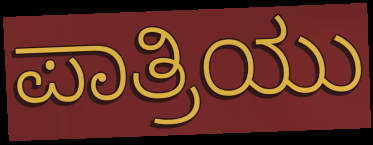
ಪಾತ್ರಿಯು